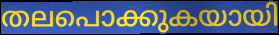
തലപൊക്കുകയായി